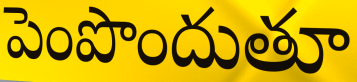
పెంపొందుతూ